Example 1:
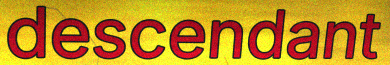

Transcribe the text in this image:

descendant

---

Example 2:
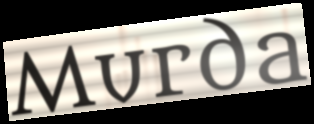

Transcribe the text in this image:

Murda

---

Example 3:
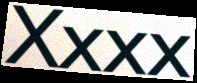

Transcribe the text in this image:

Xxxx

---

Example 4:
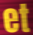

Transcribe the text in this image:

et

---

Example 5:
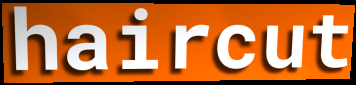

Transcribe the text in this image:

haircut